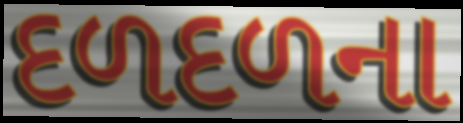
દળદળના